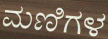
ಮಣಿಗಳ